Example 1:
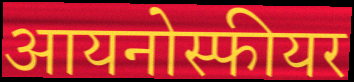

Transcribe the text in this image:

आयनोस्फीयर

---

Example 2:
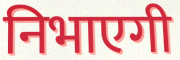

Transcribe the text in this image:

निभाएगी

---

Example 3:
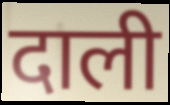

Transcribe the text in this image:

दाली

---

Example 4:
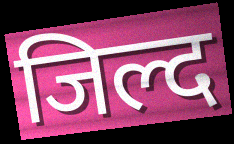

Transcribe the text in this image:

जिल्द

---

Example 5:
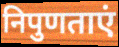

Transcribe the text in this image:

निपुणताएं